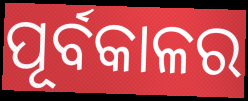
ପୂର୍ବକାଳର